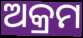
ଅକ୍ରମ